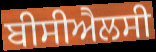
ਬੀਸੀਐਲਸੀ